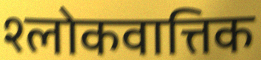
श्लोकवात्तिक